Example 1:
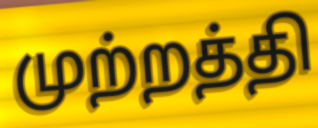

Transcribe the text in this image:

முற்றத்தி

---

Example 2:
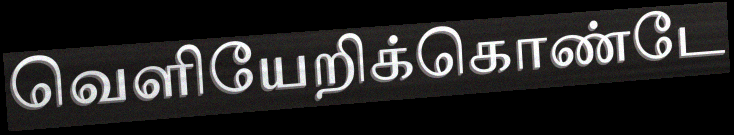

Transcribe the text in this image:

வெளியேறிக்கொண்டே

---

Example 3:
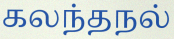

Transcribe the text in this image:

கலந்தநல்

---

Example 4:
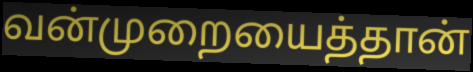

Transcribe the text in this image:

வன்முறையைத்தான்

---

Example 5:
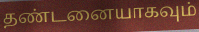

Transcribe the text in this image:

தண்டனையாகவும்